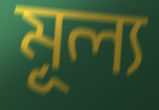
মূল্য